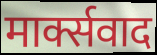
मार्क्सवाद